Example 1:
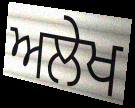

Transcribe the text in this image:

ਅਲੇਖ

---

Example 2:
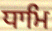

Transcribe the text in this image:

ਧਾਮਿ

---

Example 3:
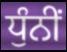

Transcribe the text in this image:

ਧੁੰਨੀਂ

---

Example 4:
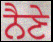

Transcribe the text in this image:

ਨੈਣੇ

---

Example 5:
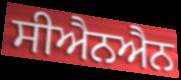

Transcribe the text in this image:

ਸੀਐਨਐਨ